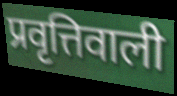
प्रवृत्तिवाली